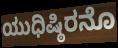
ಯುಧಿಷ್ಠಿರನೊ